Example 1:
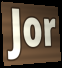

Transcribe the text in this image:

Jor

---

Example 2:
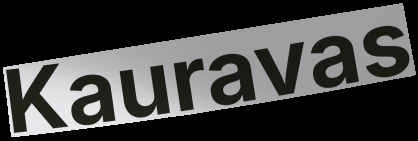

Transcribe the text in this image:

Kauravas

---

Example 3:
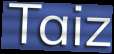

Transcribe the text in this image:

Taiz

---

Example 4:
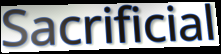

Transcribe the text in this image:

Sacrificial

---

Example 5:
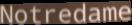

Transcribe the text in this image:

Notredame